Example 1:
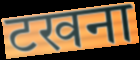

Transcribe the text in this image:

टखना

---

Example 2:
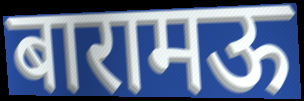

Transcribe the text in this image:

बारामऊ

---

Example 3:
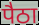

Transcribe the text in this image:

पैठा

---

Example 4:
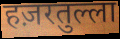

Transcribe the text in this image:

हज़रतुल्ला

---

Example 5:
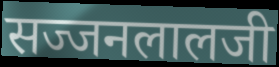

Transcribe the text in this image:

सज्जनलालजी